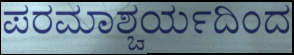
ಪರಮಾಶ್ಚರ್ಯದಿಂದ